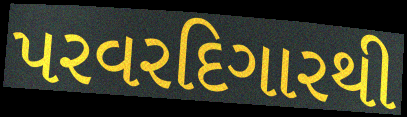
પરવરદિગારથી